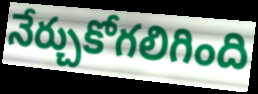
నేర్చుకోగలిగింది